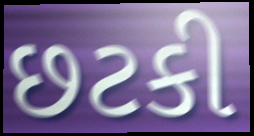
છટકી